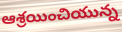
ఆశ్రయించియున్న